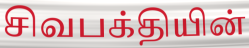
சிவபக்தியின்